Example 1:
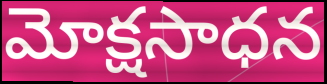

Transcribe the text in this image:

మోక్షసాధన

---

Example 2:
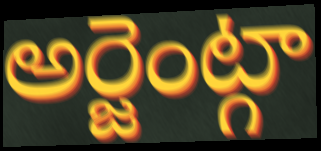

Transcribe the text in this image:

అర్జెంట్గా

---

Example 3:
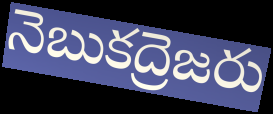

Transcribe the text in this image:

నెబుకద్రెజరు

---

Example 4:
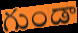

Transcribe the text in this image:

గుండా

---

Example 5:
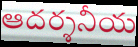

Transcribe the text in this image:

ఆదర్శనీయ